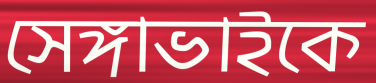
সেঙ্গাভাইকে